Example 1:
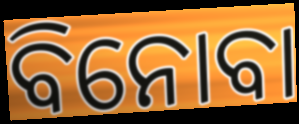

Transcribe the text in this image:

ବିନୋବା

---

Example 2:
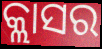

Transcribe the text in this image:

କ୍ଲାସର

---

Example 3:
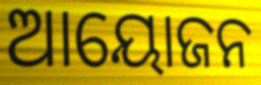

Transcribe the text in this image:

ଆୟୋଜନ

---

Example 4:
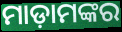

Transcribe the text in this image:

ମାଡ଼ାମଙ୍କର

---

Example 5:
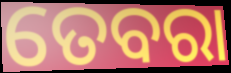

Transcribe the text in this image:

ତେବରା